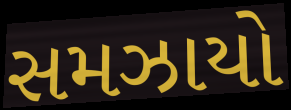
સમઝાયો